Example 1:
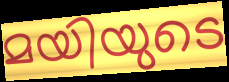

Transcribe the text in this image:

മയിയുടെ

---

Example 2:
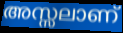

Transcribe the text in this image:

അസ്സലാണ്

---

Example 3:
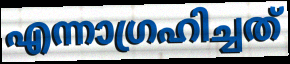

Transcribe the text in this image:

എന്നാഗ്രഹിച്ചത്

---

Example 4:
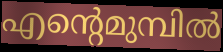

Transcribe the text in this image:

എന്റെമുമ്പിൽ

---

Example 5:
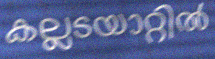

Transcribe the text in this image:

കല്ലടയാറ്റിൽ